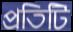
প্রতিটি